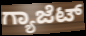
ಗ್ಯಾಜೆಟ್